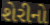
શેરીનો